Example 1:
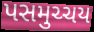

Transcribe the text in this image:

પસમુચ્ચય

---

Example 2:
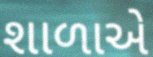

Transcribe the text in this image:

શાળાએે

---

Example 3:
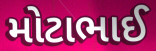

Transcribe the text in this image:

મોટાભાઈ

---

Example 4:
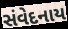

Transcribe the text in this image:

સંવેદનાય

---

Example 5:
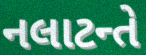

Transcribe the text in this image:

નલાટન્તે